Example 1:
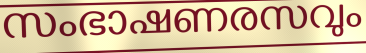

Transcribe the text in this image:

സംഭാഷണരസവും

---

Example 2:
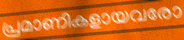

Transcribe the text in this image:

പ്രമാണികളായവരോ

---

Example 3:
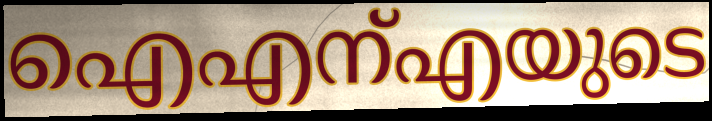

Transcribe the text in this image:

ഐഎന്എയുടെ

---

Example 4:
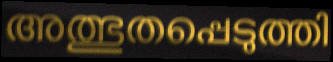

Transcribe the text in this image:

അത്ഭുതപ്പെടുത്തി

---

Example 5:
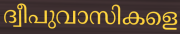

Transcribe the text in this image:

ദ്വീപുവാസികളെ